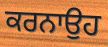
ਕਰਨਾਉਹ